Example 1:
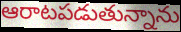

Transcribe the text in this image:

ఆరాటపడుతున్నాను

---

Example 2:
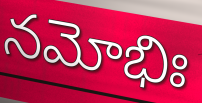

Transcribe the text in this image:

నమోభిః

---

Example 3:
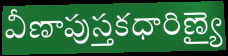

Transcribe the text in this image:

వీణాపుస్తకధారిణ్యై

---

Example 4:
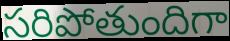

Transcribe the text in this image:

సరిపోతుందిగా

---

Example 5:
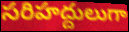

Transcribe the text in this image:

సరిహద్దులుగా